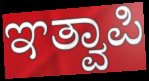
ಞತ್ವಾಪಿ